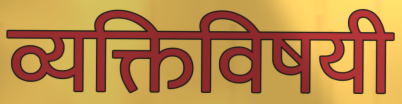
व्यक्तिविषयी